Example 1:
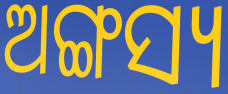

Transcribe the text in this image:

ଅଙ୍ଗସ୍ୟ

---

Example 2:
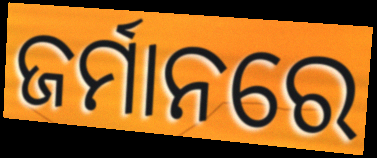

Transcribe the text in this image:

ଜର୍ମାନରେ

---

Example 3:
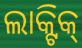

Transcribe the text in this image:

ଲାକ୍ଟିକ୍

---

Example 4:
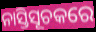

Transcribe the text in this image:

ନାସ୍ତିସୂଚକରେ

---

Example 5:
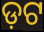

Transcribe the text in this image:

ଡ଼ଟ